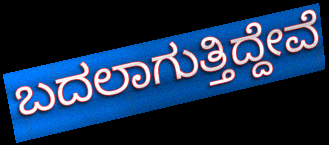
ಬದಲಾಗುತ್ತಿದ್ದೇವೆ